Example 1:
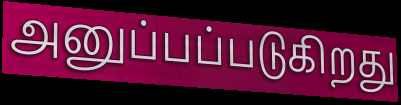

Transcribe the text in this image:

அனுப்பப்படுகிறது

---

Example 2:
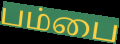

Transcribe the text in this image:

பம்பை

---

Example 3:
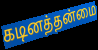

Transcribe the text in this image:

கடினத்தன்மை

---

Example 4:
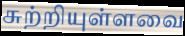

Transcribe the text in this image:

சுற்றியுள்ளவை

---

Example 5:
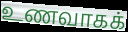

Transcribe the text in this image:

உணவாகக்